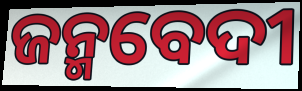
ଜନ୍ମବେଦୀ